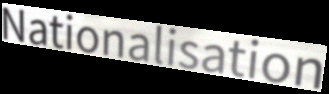
Nationalisation